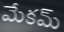
మేకమ్